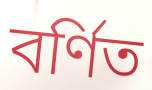
বৰ্ণিত